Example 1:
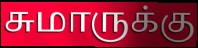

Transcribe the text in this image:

சுமாருக்கு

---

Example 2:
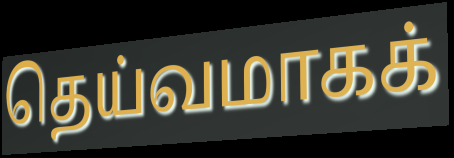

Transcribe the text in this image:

தெய்வமாகக்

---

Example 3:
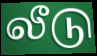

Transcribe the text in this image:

லீடு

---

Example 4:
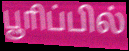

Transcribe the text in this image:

பூரிப்பில்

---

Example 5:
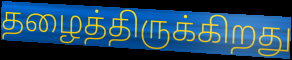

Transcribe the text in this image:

தழைத்திருக்கிறது